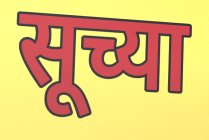
सूच्या